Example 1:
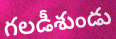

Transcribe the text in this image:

గలడీశుండు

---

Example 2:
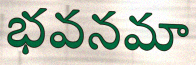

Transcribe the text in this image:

భవనమా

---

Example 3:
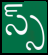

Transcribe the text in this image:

స్స్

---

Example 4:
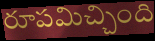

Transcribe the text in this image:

రూపమిచ్చింది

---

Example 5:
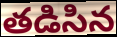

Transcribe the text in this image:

తడిసిన